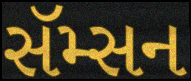
સૅમ્સન